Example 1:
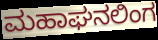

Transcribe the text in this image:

ಮಹಾಘನಲಿಂಗ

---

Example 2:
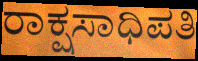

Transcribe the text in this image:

ರಾಕ್ಷಸಾಧಿಪತಿ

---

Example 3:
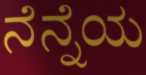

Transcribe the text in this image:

ನೆನ್ನೆಯ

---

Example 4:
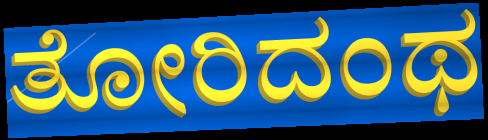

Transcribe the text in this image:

ತೋರಿದಂಥ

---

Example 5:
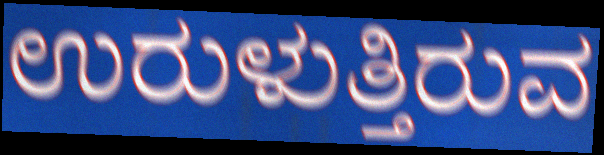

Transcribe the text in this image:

ಉರುಳುತ್ತಿರುವ